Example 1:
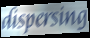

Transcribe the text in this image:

dispersing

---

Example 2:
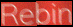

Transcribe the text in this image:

Rebin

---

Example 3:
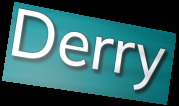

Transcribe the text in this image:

Derry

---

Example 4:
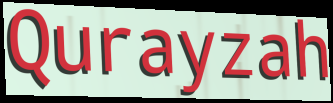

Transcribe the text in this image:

Qurayzah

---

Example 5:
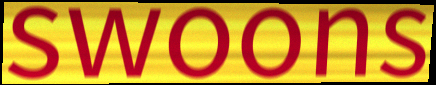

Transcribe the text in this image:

swoons